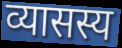
व्यासस्य